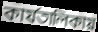
কার্যতালিকায়